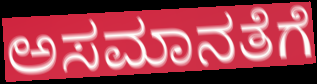
ಅಸಮಾನತೆಗೆ